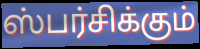
ஸ்பர்சிக்கும்